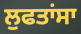
ਲੁਫਤਾਂਸਾ